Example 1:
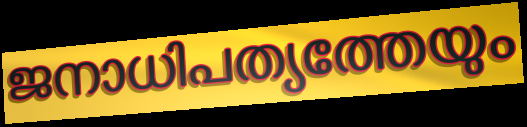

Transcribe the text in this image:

ജനാധിപത്യത്തേയും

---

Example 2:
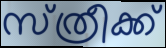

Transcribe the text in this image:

സ്‌ത്രീക്ക്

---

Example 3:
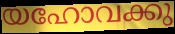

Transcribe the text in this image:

യഹോവക്കു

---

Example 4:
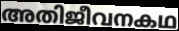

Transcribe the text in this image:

അതിജീവനകഥ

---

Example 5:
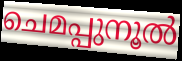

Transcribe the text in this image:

ചെമപ്പുനൂൽ